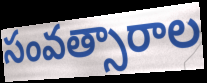
సంవత్సారాల